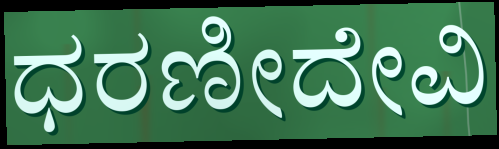
ಧರಣೀದೇವಿ